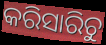
କରିସାରିଚୁ